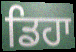
ਡਿਹਾ